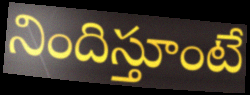
నిందిస్తూంటే